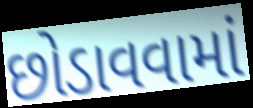
છોડાવવામાં